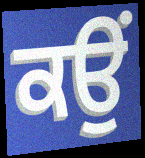
ਕਉਂ